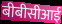
बीबीसीआई